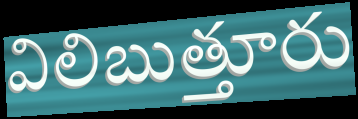
విలిబుత్తూరు